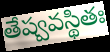
తేష్వవస్థితః